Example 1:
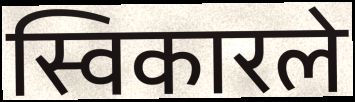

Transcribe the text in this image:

स्विकारले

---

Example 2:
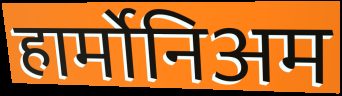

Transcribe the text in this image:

हार्मोनिअम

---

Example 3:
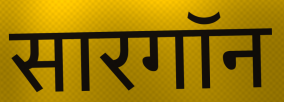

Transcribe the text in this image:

सारगॉन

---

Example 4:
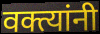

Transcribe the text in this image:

वक्त्यांनी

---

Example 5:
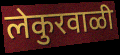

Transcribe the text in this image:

लेकुरवाळी